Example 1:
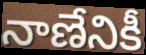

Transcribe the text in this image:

నాణేనికీ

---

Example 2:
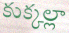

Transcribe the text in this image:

కుక్కల్లా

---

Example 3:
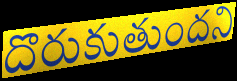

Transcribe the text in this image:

దొరుకుతుందని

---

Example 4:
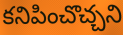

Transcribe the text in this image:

కనిపించొచ్చని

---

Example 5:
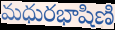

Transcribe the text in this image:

మధురభాషిణి